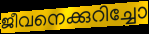
ജീവനെക്കുറിച്ചോ